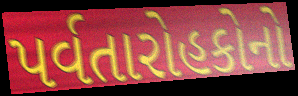
પર્વતારોહકોનો